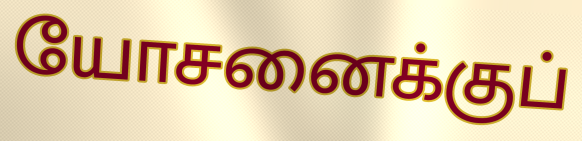
யோசனைக்குப்